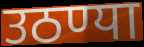
उठण्या